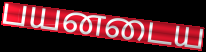
பயனடைய